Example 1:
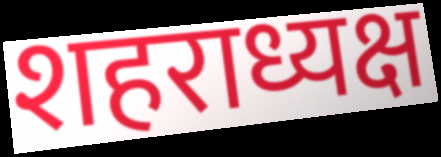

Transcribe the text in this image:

शहराध्यक्ष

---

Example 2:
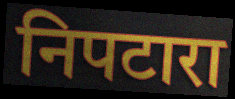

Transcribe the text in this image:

निपटारा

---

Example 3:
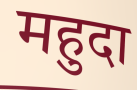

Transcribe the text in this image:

महुदा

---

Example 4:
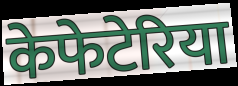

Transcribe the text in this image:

केफेटेरिया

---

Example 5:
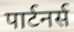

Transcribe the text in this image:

पार्टनर्स